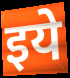
इये